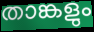
താങ്കളും